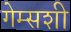
गेम्सशी